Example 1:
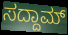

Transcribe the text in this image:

ಸದ್ದಾಮ್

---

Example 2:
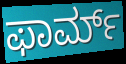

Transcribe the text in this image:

ಫಾರ್ಮ್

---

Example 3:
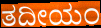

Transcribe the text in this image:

ತದೀಯಂ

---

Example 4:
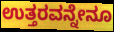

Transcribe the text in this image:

ಉತ್ತರವನ್ನೇನೂ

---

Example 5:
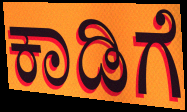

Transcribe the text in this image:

ಕಾಡಿಗೆ